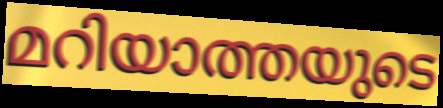
മറിയാത്തയുടെ